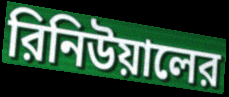
রিনিউয়ালের